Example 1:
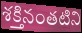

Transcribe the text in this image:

శక్తినంతటిని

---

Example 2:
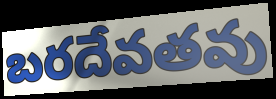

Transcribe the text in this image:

బరదేవతవు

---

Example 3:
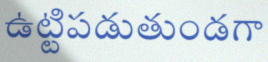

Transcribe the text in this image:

ఉట్టిపడుతుండగా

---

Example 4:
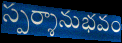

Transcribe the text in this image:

స్పర్శానుభవం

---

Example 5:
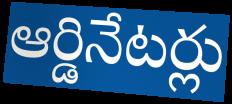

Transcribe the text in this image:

ఆర్డినేటర్లు